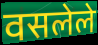
वसलेले